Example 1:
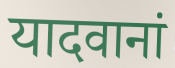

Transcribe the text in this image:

यादवानां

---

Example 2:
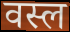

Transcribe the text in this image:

वस्ल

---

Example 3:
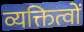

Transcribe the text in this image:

व्यक्तित्वों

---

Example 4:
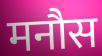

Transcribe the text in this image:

मनौस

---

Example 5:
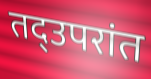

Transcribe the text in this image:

तद्उपरांत